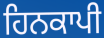
ਹਿਨਕਾਪੀ